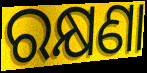
ରକ୍ଷଣା